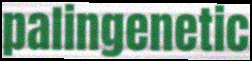
palingenetic